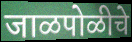
जाळपोळीचे